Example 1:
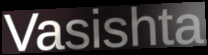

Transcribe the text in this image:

Vasishta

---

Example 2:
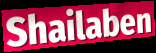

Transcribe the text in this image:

Shailaben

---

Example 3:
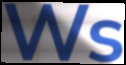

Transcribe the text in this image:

Ws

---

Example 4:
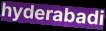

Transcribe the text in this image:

hyderabadi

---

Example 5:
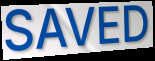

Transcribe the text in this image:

SAVED